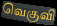
வெகுவி